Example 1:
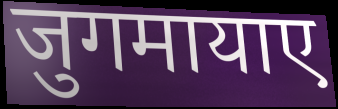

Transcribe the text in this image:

जुगमायाए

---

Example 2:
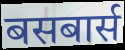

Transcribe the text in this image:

बसबार्स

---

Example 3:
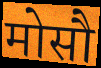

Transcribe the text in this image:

मोसौ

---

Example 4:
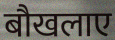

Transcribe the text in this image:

बौखलाए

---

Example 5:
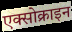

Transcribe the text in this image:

एक्सोक्राइन